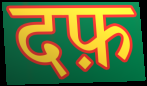
दफ़